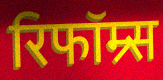
रिफॉम्र्स